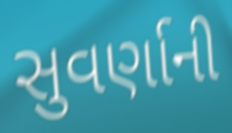
સુવર્ણાની